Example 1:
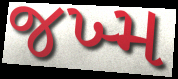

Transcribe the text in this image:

જખ્મ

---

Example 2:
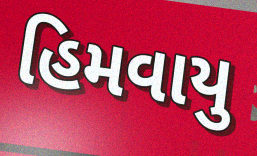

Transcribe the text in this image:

હિમવાયુ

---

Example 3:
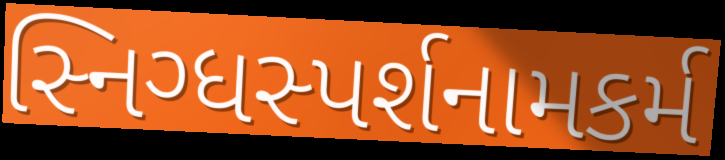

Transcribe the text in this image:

સ્નિગ્ધસ્પર્શનામકર્મ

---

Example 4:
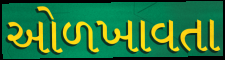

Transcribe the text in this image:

ઓળખાવતા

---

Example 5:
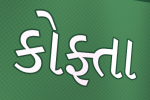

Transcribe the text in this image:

કોફ્તા